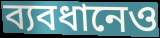
ব্যবধানেও